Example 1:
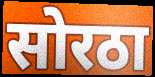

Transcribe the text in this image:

सोरठा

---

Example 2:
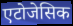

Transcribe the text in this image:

एटोजेसिक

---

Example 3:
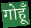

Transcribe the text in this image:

गोहूँ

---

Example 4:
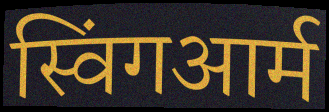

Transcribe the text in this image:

स्विंगआर्म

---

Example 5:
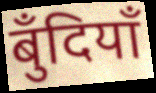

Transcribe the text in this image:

बुँदियाँ